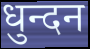
धुन्दन